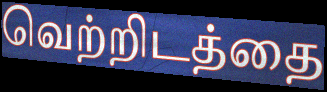
வெற்றிடத்தை